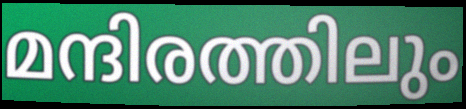
മന്ദിരത്തിലും